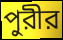
পুরীর